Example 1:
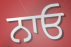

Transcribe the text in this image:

ਨਾਓ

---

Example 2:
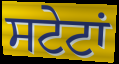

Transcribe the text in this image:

ਸਟੇਟਾਂ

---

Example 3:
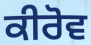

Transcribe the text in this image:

ਕੀਰੋਵ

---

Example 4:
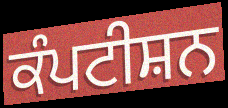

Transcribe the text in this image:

ਕੰਪਟੀਸ਼ਨ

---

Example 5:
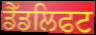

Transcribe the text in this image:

ਡੈੱਡਲਿਫਟ